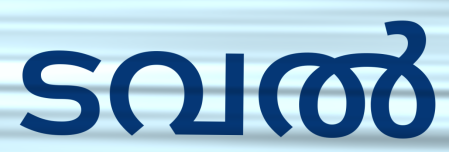
ടവൽ